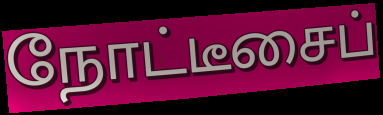
நோட்டீசைப்